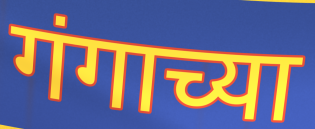
गंगाच्या